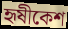
হৃষীকেশ